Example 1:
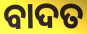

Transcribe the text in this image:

ବାଦତ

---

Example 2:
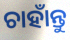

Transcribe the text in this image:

ଚାହାଁନ୍ତୁ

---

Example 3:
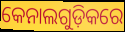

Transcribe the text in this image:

କେନାଲଗୁଡ଼ିକରେ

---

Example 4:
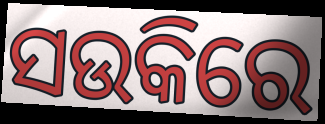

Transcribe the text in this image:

ସଉକିରେ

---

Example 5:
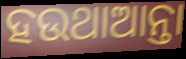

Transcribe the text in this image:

ହଉଥାଆନ୍ତା